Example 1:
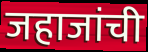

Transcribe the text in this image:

जहाजांची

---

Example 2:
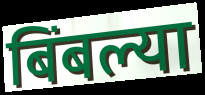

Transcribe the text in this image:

बिंबल्या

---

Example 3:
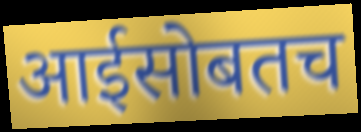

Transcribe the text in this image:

आईसोबतच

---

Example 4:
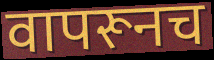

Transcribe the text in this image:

वापरूनच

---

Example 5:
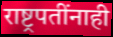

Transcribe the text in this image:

राष्ट्रपतींनाही